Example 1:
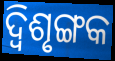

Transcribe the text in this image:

ଦ୍ଵିଶୃଙ୍ଗକ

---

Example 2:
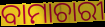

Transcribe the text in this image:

ବାମାଚାରୀ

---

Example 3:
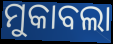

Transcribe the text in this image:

ମୁକାବଲା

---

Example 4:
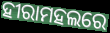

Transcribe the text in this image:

ହୀରାମହଲରେ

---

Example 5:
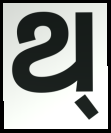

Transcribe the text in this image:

ଥ୍